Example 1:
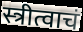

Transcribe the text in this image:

स्त्रीत्वाचं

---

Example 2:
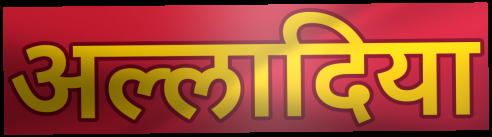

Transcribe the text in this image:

अल्लादिया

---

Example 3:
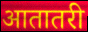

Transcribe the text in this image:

आतातरी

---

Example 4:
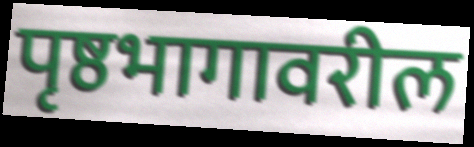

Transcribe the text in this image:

पृष्ठभागावरील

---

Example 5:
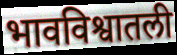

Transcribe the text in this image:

भावविश्वातली